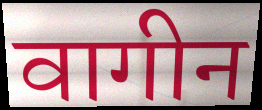
वागीन